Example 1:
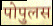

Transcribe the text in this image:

पोपुलस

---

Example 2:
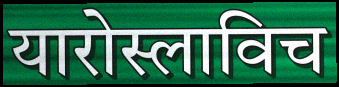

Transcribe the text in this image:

यारोस्लाविच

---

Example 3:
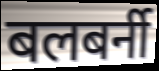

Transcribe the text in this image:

बलबर्नी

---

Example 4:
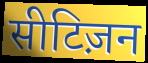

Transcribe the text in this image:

सीटिज़न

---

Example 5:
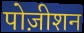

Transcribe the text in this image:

पोज़ीशन